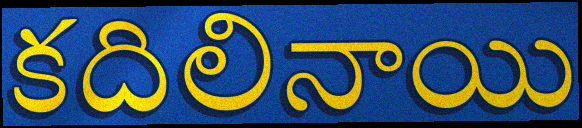
కదిలినాయి